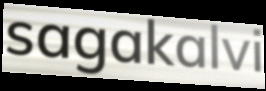
sagakalvi